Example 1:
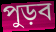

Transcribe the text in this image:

পুড়ব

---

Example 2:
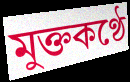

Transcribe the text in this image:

মুক্তকণ্ঠে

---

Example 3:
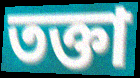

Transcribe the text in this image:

তক্তা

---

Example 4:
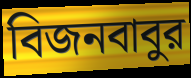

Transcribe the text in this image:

বিজনবাবুর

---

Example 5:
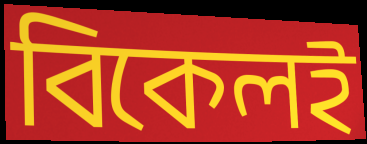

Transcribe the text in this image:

বিকেলই